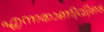
എന്നതാണിവിടെ